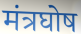
मंत्रघोष